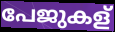
പേജുകള്